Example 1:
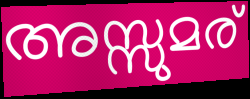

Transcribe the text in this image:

അസ്സുമര്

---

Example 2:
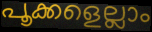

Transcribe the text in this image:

പൂക്കളെല്ലാം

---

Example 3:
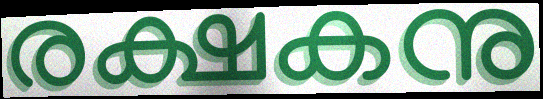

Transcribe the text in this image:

രക്ഷകനു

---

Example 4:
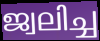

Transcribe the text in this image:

ജ്വലിച്ച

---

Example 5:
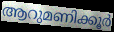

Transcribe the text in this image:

ആറുമണിക്കൂർ